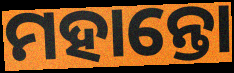
ମହାନ୍ତୋ